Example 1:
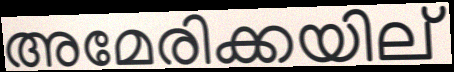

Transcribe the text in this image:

അമേരിക്കയില്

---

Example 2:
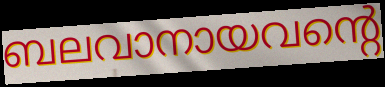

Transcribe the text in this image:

ബലവാനായവന്റെ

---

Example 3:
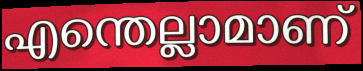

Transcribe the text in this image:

എന്തെല്ലാമാണ്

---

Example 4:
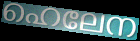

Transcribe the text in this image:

ഹെലേന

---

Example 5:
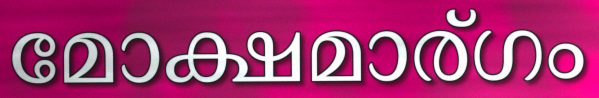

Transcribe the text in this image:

മോക്ഷമാര്ഗം